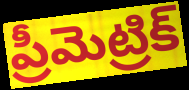
ప్రీమెట్రిక్